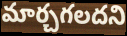
మార్చగలదని